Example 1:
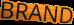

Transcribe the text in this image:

BRAND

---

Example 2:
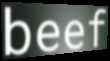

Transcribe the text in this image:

beef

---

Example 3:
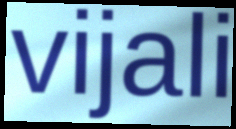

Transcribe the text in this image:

vijali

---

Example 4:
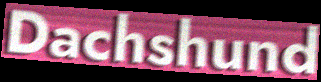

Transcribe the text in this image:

Dachshund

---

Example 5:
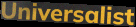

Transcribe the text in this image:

Universalist